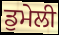
ਡੁਮੇਲੀ